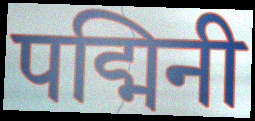
पद्मिनी